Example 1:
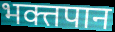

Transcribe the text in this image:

भक्तपान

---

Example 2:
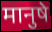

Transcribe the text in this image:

मानुषे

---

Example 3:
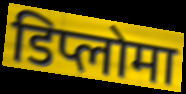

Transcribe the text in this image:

डिप्‍लोमा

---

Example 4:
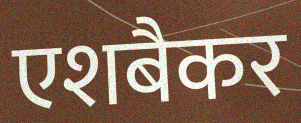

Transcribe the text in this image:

एशबैकर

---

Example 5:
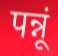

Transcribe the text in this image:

पन्नूं